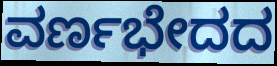
ವರ್ಣಭೇದದ